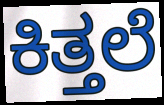
ಕಿತ್ತಲೆ